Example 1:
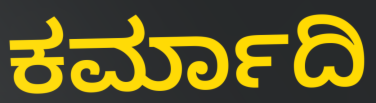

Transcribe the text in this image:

ಕರ್ಮಾದಿ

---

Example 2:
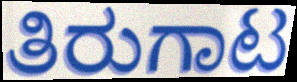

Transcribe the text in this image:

ತಿರುಗಾಟ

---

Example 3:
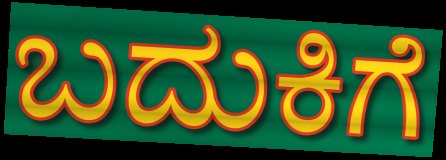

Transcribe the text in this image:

ಬದುಕಿಗೆ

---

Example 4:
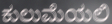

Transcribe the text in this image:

ಕುಲುಮೆಯಲಿ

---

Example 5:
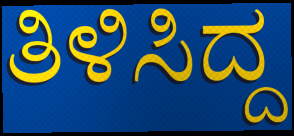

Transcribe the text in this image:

ತಿಳಿಸಿದ್ದ